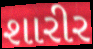
શારીર